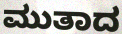
ಮುತಾದ